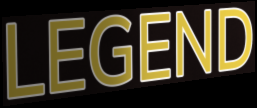
LEGEND